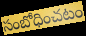
సంబోధించటం